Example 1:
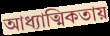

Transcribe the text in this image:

আধ্যাত্মিকতায়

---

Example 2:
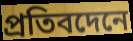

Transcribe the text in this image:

প্রতিবদেনে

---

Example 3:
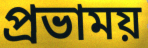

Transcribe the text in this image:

প্রভাময়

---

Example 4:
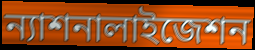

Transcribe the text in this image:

ন্যাশনালাইজেশন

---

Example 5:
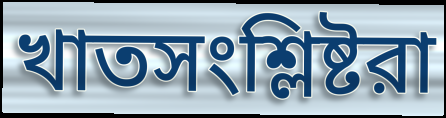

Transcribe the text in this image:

খাতসংশ্লিষ্টরা